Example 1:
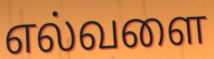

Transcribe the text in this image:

எல்வளை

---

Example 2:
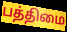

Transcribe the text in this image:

பத்திமை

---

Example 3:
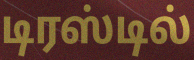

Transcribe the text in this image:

டிரஸ்டில்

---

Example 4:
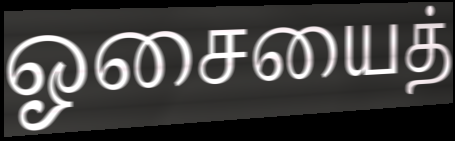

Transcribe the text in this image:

ஓசையைத்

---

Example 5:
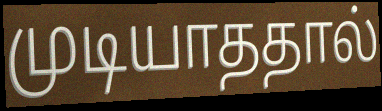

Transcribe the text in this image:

முடியாததால்